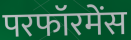
परफॉरमेंस